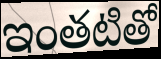
ఇంతటితో